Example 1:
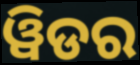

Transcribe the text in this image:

ୱିଡର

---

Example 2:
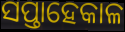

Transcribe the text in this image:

ସପ୍ତାହେକାଳ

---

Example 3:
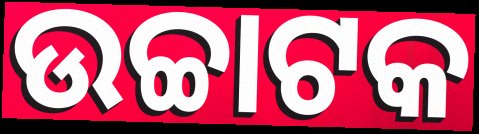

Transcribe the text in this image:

ଉଚ୍ଚାଟକ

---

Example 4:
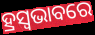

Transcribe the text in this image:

ହ୍ରସ୍ୱଭାବରେ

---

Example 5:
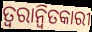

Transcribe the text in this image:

ତ୍ୱରାନ୍ୱିତକାରୀ